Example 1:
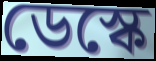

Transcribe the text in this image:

ডেস্কে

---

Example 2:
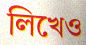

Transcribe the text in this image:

লিখেও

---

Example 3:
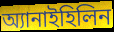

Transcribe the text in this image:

অ্যানাইহিলিন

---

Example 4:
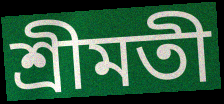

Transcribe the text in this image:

শ্রীমতী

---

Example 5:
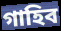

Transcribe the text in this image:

গাহিব